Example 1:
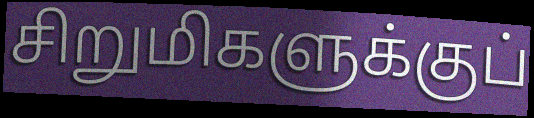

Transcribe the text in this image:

சிறுமிகளுக்குப்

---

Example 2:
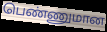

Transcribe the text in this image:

பெண்ணுமான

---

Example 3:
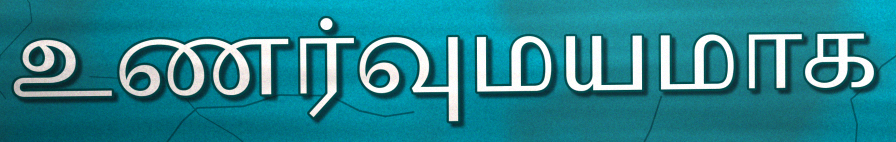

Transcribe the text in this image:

உணர்வுமயமாக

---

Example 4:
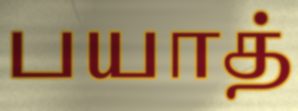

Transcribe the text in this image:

பயாத்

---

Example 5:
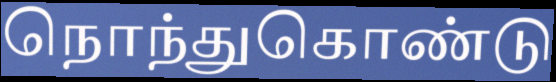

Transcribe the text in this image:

நொந்துகொண்டு